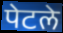
पेटले